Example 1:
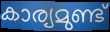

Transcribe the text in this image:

കാര്യമുണ്ട്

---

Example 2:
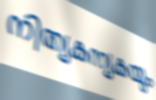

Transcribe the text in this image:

നിത്യകന്യകയും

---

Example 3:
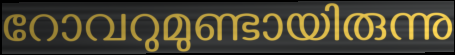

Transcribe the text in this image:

റോവറുമുണ്ടായിരുന്നു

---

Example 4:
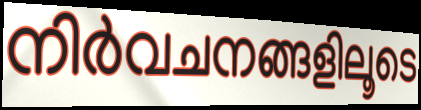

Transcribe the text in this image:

നിർവചനങ്ങളിലൂടെ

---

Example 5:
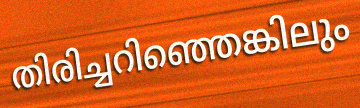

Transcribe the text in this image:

തിരിച്ചറിഞ്ഞെങ്കിലും